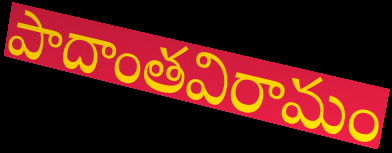
పాదాంతవిరామం